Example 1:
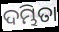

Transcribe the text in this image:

ଦମ୍ଭିତା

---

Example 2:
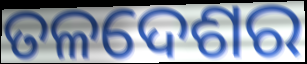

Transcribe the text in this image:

ତଳଦେଶର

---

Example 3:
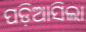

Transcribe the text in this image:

ପଡ଼ିଆସିଲା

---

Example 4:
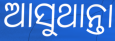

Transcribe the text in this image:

ଆସୁଥାନ୍ତା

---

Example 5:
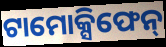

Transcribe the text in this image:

ଟାମୋକ୍ସିଫେନ୍